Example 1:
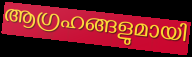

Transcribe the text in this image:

ആഗ്രഹങ്ങളുമായി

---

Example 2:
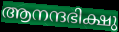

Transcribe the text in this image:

ആനന്ദഭിക്ഷു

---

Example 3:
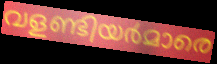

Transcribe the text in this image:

വളണ്ടിയർമാരെ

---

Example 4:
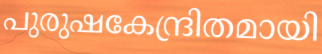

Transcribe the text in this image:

പുരുഷകേന്ദ്രിതമായി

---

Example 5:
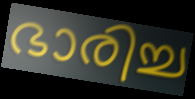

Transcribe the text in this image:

ഭാരിച്ച